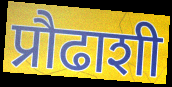
प्रौढाशी